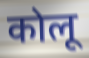
कोलू